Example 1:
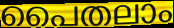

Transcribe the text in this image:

പൈതലാം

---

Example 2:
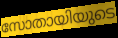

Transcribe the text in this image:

സോതായിയുടെ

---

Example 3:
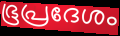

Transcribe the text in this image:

ഭൂപ്രദേശം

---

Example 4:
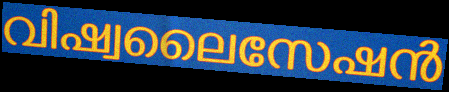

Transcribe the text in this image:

വിഷ്വലൈസേഷൻ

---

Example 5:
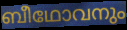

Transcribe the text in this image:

ബീഥോവനും